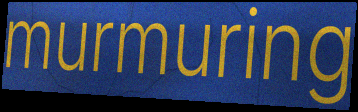
murmuring